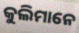
କୁଲିମାନେ